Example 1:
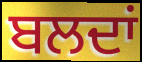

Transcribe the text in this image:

ਬਲਦਾਂ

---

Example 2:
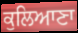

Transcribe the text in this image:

ਕੁਲਿਆਣਾ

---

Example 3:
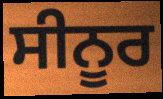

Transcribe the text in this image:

ਸੀਨੂਰ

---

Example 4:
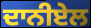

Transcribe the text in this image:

ਦਾਨੀਏਲ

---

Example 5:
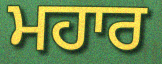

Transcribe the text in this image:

ਮਹਾਰ